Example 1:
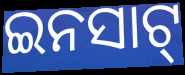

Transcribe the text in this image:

ଇନସାଟ୍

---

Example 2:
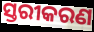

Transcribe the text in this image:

ସ୍ତରୀକରଣ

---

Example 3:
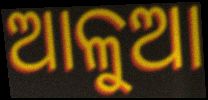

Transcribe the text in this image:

ଆଳୁଆ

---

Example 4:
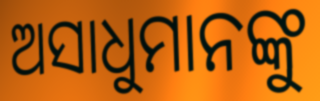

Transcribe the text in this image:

ଅସାଧୁମାନଙ୍କୁ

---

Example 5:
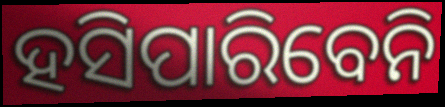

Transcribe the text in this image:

ହସିପାରିବେନି